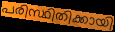
പരിസ്ഥിതിക്കായി